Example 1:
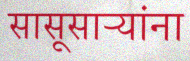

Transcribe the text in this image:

सासूसाऱ्यांना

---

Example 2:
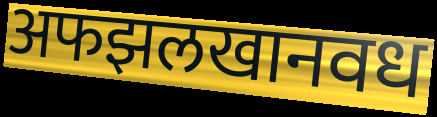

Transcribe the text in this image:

अफझलखानवध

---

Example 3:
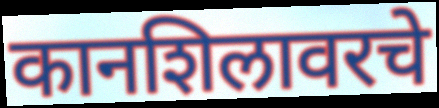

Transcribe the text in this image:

कानशिलावरचे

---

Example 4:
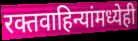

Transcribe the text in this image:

रक्तवाहिन्यांमध्येही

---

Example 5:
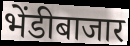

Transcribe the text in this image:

भेंडीबाजार